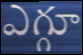
ఎగ్గూ